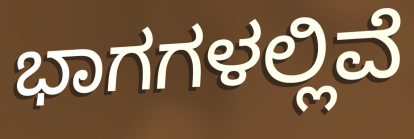
ಭಾಗಗಳಲ್ಲಿವೆ